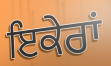
ਇਕੇਰਾਂ